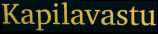
Kapilavastu